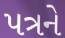
પત્રને